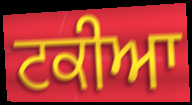
ਟਕੀਆ